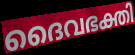
ദൈവഭക്തി